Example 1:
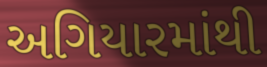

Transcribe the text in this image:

અગિયારમાંથી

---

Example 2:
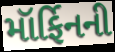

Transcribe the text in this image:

મૉર્ફિનની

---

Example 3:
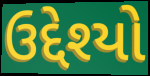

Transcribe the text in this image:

ઉદ્દેશ્યો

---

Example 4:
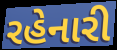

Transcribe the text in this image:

રહેનારી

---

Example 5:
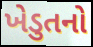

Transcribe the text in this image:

ખેડુતનો